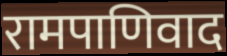
रामपाणिवाद